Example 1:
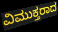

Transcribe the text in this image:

ವಿಮುಕ್ತರಾದ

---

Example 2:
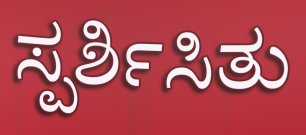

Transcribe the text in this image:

ಸ್ಪರ್ಶಿಸಿತು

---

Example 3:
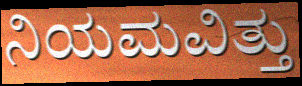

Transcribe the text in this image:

ನಿಯಮವಿತ್ತು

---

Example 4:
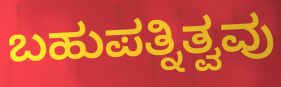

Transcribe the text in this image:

ಬಹುಪತ್ನಿತ್ವವು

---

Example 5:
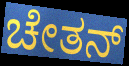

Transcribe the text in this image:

ಚೇತನ್